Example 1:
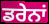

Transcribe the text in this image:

ਡਰੇਨਾਂ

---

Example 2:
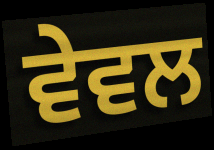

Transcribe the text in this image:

ਵੇਵਲ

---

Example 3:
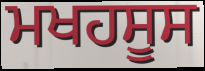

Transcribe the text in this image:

ਮਖਹਸੂਸ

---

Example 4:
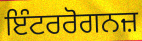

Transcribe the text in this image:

ਇੰਟਰਰੋਗਨਜ਼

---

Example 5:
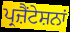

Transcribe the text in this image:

ਪ੍ਰਜ਼ੈਂਟੇਸ਼ਨਾਂ